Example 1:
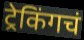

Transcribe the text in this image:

ट्रेकिंगचं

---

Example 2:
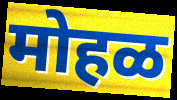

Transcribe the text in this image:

मोहळ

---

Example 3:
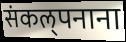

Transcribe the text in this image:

संकल्पनाना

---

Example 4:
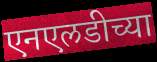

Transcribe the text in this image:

एनएलडीच्या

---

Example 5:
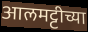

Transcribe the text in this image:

आलमट्टीच्या